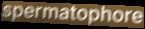
spermatophore